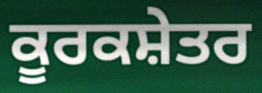
ਕੂਰਕਸ਼ੇਤਰ